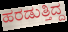
ಹರಡುತ್ತಿದ್ದ